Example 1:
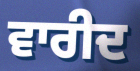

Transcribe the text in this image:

ਵਾਰੀਦ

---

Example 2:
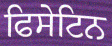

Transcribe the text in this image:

ਫਿਸੇਟਿਨ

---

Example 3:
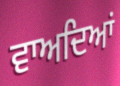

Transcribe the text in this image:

ਵਾਅਦਿਆਂ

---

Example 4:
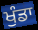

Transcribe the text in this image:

ਖੁੰਡਾ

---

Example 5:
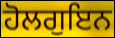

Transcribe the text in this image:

ਹੋਲਗੁਇਨ